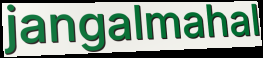
jangalmahal